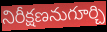
నిరీక్షణనుగూర్చి